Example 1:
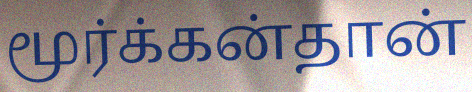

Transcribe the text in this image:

மூர்க்கன்தான்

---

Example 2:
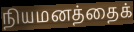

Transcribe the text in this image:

நியமனத்தைக்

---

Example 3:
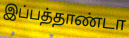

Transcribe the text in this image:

இப்பத்தாண்டா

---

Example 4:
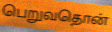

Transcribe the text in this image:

பெறுவதொன்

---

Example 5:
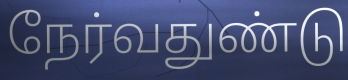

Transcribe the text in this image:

நேர்வதுண்டு